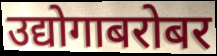
उद्योगाबरोबर